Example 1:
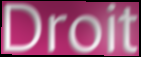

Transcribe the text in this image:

Droit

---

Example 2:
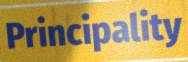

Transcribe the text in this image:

Principality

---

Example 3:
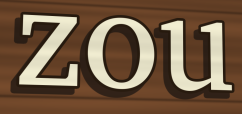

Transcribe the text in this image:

zou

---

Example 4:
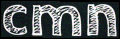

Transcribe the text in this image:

cmn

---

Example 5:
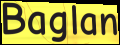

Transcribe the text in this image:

Baglan